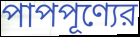
পাপপূণ্যের